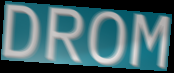
DROM